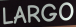
LARGO